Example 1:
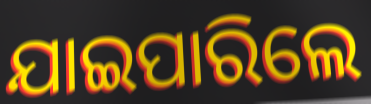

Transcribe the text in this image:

ଯାଇପାରିଲେ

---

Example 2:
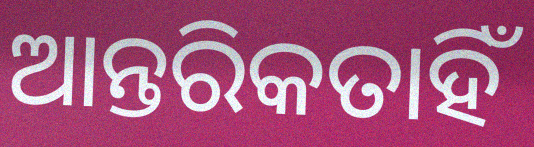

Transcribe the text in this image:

ଆନ୍ତରିକତାହିଁ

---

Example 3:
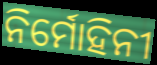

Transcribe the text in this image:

ନିର୍ମୋହିନୀ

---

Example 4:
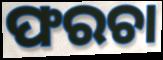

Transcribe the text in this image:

ଫରଚା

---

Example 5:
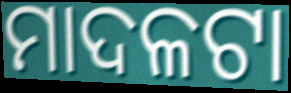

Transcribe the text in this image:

ମାଦଳଟା